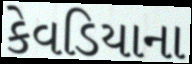
કેવડિયાના